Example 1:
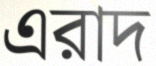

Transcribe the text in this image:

এরাদ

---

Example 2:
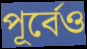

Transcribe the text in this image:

পূর্বেও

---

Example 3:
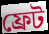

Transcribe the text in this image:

ফ্রেট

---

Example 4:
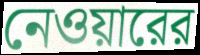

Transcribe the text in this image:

নেওয়ারের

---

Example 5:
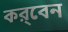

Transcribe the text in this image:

কর্‌বেন